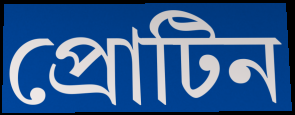
প্রোটিন